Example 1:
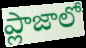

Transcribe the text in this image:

ప్లాజాలో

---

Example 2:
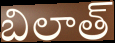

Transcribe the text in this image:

బిలాత్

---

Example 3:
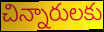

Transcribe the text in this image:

చిన్నారులకు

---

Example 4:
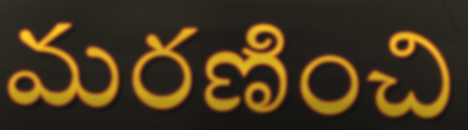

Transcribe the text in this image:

మరణించి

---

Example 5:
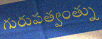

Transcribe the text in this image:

గురుపత్వంత్ను